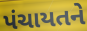
પંચાયતને